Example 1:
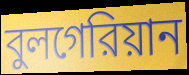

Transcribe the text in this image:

বুলগেরিয়ান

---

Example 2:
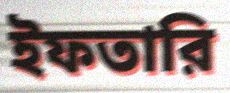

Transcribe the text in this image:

ইফতারি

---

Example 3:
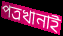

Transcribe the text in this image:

পত্রখানাই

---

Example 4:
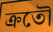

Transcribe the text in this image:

ক্রতৌ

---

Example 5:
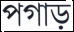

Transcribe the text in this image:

পগাড়